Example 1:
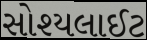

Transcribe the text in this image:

સોશ્યલાઈટ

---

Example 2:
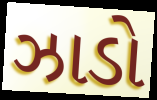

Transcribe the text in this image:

ઝાડો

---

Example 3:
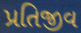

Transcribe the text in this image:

પ્રતિજીવ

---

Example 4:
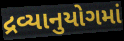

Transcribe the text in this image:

દ્રવ્યાનુયોગમાં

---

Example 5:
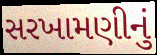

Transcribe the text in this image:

સરખામણીનું